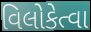
વિલોકેત્વા